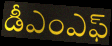
డీఎంఎఫ్